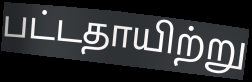
பட்டதாயிற்று